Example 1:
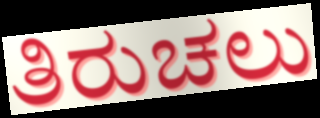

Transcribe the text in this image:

ತಿರುಚಲು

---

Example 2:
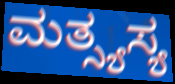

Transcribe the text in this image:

ಮತ್ಸ್ಯಸ್ಯ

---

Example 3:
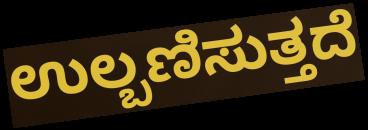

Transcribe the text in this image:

ಉಲ್ಬಣಿಸುತ್ತದೆ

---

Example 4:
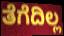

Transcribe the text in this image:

ತೆಗೆದಿಲ್ಲ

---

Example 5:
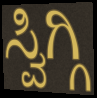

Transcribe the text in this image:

ಸ್ವಿಗ್ಗಿ